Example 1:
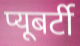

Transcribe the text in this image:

प्‍यूबर्टी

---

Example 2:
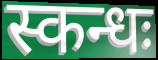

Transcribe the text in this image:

स्कन्धः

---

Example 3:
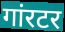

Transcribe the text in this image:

गांरटर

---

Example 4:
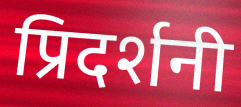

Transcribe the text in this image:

प्रिदर्शनी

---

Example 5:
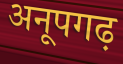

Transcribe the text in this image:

अनूपगढ़